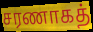
சரணாகத்